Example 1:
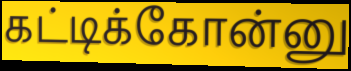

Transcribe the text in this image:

கட்டிக்கோன்னு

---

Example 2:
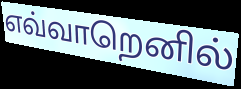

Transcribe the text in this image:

எவ்வாறெனில்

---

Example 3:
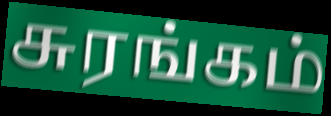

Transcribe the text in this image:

சுரங்கம்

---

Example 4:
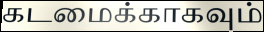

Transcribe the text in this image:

கடமைக்காகவும்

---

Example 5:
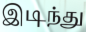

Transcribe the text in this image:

இடிந்து